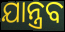
ଯାନ୍ତ୍ରବ